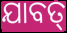
ଯାବତ୍